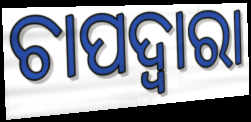
ଚାପଦ୍ବାରା